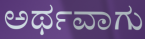
ಅರ್ಥವಾಗು